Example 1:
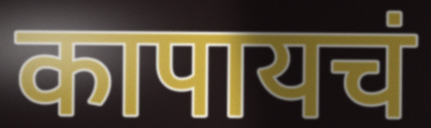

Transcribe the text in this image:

कापायचं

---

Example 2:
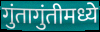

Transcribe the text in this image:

गुंतागुंतीमध्ये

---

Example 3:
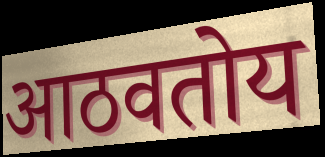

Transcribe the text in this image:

आठवतोय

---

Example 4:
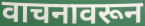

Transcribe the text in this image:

वाचनावरून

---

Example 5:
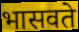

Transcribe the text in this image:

भासवते